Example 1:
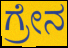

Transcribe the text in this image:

ಗ್ರೇನ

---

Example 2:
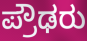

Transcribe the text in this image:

ಪ್ರೌಢರು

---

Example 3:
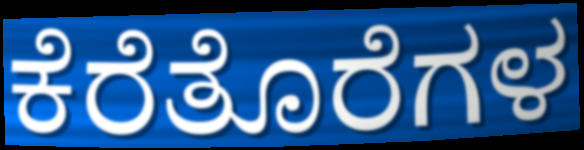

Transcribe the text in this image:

ಕೆರೆತೊರೆಗಳ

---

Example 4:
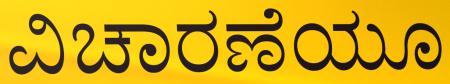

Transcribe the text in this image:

ವಿಚಾರಣೆಯೂ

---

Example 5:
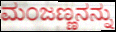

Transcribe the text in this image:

ಮಂಜಣ್ಣನನ್ನು